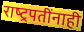
राष्ट्रपतींनाही